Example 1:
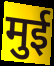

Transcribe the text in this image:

मुई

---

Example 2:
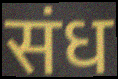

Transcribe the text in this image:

संध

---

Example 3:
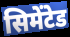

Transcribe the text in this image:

सिमेंटेड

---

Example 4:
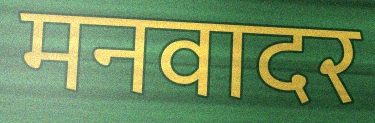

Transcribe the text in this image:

मनवादर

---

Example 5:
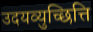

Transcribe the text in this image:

उदयव्युच्छित्ति